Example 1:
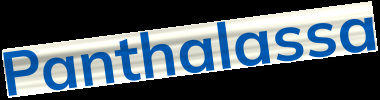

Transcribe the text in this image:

Panthalassa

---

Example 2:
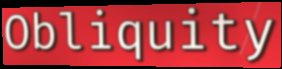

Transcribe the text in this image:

Obliquity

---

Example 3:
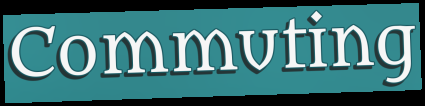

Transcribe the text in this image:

Commuting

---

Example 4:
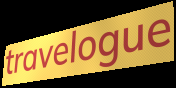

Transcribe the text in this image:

travelogue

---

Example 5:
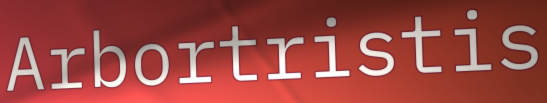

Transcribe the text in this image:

Arbortristis